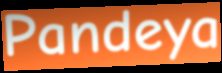
Pandeya